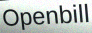
Openbill